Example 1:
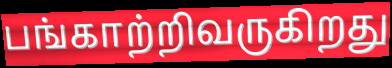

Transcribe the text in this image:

பங்காற்றிவருகிறது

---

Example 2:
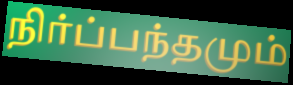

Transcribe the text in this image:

நிர்ப்பந்தமும்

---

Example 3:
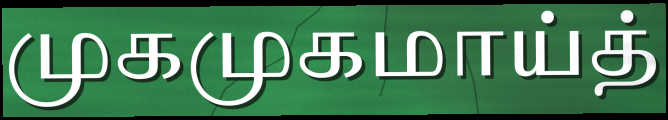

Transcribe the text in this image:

முகமுகமாய்த்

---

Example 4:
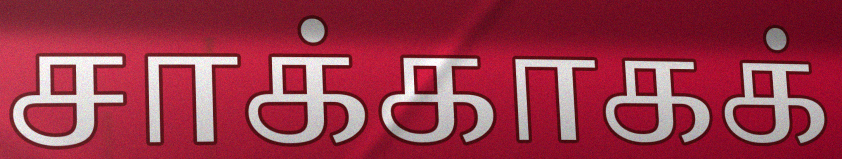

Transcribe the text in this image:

சாக்காகக்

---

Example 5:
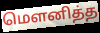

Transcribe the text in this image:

மௌனித்த